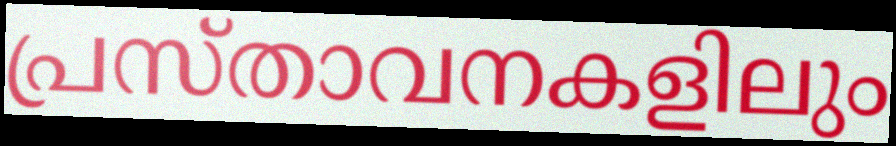
പ്രസ്താവനകളിലും